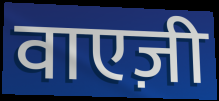
वाएज़ी